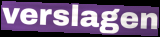
verslagen